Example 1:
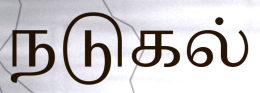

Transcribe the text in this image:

நடுகல்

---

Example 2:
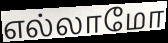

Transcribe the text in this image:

எல்லாமோ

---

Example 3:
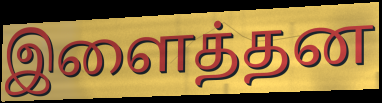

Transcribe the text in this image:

இளைத்தன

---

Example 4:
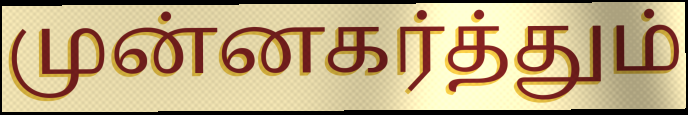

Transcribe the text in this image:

முன்னகர்த்தும்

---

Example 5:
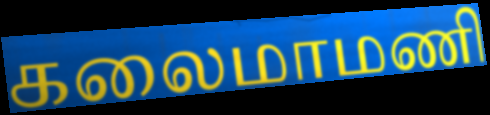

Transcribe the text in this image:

கலைமாமணி